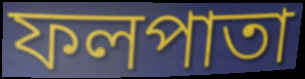
ফলপাতা